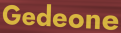
Gedeone